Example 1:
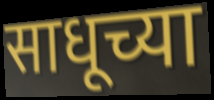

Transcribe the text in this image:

साधूच्या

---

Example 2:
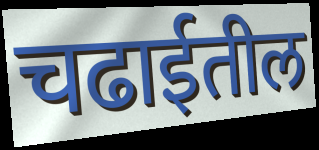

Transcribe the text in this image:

चढाईतील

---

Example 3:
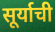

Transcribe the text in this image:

सूर्याची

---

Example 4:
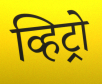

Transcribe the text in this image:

व्हिट्रो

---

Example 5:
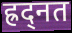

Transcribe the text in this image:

ह्रद्नत